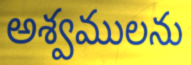
అశ్వములను